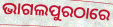
ଭାଗଲପୁରଠାରେ